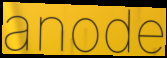
anode